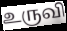
உருவி